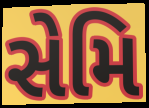
સેમિ